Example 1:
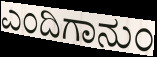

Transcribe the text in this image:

ಎಂದಿಗಾನುಂ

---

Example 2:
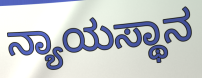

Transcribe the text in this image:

ನ್ಯಾಯಸ್ಥಾನ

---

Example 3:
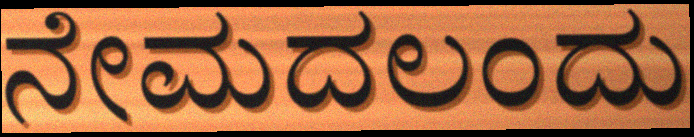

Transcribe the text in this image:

ನೇಮದಲಂದು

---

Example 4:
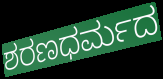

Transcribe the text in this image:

ಶರಣಧರ್ಮದ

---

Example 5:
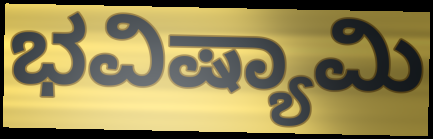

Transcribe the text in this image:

ಭವಿಷ್ಯಾಮಿ